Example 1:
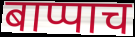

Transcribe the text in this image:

बाप्पाच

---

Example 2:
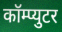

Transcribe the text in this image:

कॉम्प्युटर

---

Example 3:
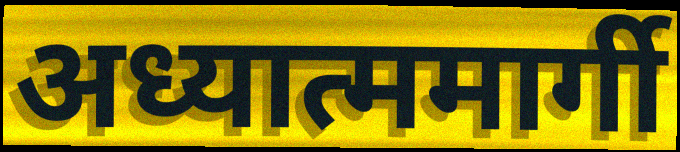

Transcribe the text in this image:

अध्यात्ममार्गी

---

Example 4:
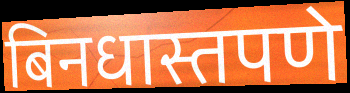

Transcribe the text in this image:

बिनधास्तपणे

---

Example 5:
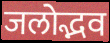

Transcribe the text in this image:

जलोद्भव